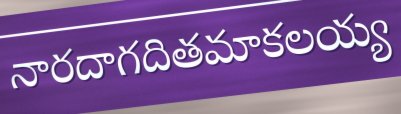
నారదాగదితమాకలయ్య